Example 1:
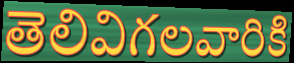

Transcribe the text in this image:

తెలివిగలవారికి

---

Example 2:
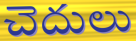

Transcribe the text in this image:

చెదులు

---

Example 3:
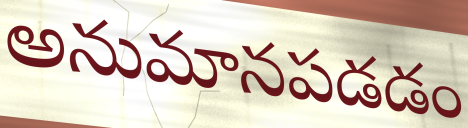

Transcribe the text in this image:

అనుమానపడడం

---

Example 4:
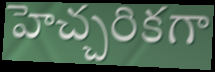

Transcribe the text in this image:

హెచ్చరికగా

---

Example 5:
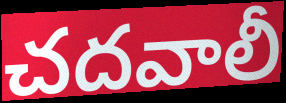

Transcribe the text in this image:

చదవాలీ